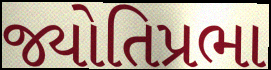
જ્યોતિપ્રભા